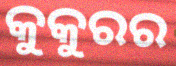
କୁକୁରର